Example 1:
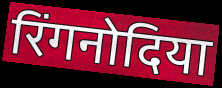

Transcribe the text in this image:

रिंगनोदिया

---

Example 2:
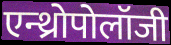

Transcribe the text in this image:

एन्थ्रोपोलॉजी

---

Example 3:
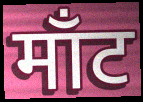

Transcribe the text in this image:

माँट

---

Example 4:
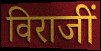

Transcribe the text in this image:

विराजीं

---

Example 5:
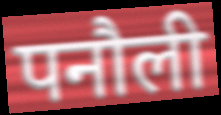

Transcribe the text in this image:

पनौली